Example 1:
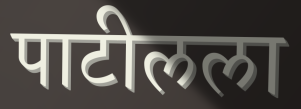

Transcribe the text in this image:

पाटीलला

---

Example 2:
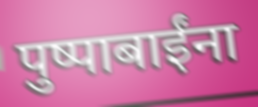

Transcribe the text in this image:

पुष्पाबाईंना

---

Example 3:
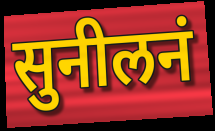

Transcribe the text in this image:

सुनीलनं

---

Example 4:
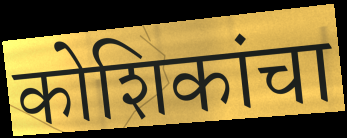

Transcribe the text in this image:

कोशिकांचा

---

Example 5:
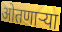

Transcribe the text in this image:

ओतणाऱ्या